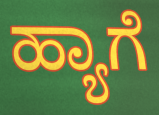
ಹ್ಯಾಗೆ